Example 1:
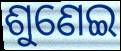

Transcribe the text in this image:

ଶୁଣେଇ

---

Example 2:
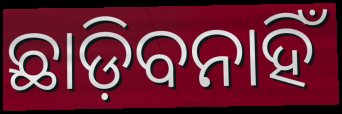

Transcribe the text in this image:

ଛାଡ଼ିବନାହିଁ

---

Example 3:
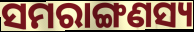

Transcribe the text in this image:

ସମରାଙ୍ଗଣସ୍ୟ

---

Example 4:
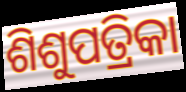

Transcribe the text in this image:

ଶିଶୁପତ୍ରିକା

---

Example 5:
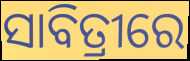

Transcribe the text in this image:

ସାବିତ୍ରୀରେ